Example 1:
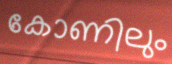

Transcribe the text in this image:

കോണിലും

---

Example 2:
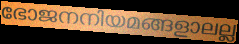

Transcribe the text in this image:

ഭോജനനിയമങ്ങളാലല്ല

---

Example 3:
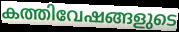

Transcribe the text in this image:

കത്തിവേഷങ്ങളുടെ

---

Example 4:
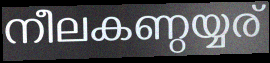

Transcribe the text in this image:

നീലകണ്ഠയ്യര്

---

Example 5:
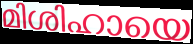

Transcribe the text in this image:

മിശിഹായെ